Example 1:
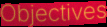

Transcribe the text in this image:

Objectives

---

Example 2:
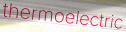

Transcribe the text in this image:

thermoelectric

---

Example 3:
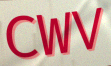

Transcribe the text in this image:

CWV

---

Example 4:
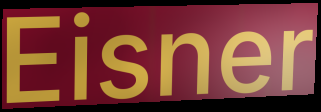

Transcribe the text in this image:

Eisner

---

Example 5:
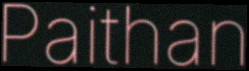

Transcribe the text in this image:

Paithan